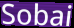
Sobai